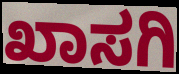
ಖಾಸಗಿ